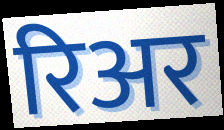
रिअर